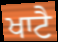
ਖਾਟੈ